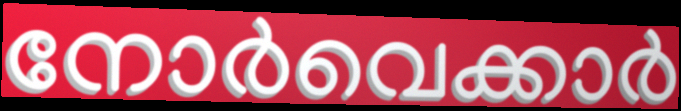
നോർവെക്കാർ